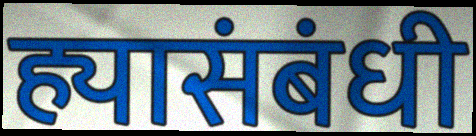
ह्यासंबंधी